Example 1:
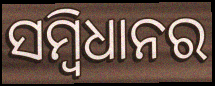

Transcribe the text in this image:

ସମ୍ବିଧାନର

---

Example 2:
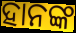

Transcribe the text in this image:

ହାନଙ୍କ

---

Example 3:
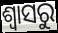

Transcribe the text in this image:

ଶ୍ୱାସରୁ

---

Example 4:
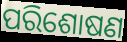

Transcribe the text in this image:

ପରିଶୋଷଣ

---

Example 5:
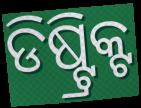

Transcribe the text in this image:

ଡିଷ୍ଟ୍ରିକ୍ଟ